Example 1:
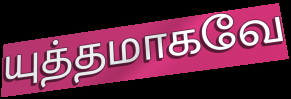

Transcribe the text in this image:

யுத்தமாகவே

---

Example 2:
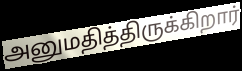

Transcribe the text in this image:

அனுமதித்திருக்கிறார்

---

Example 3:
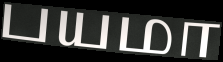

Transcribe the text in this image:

பயமா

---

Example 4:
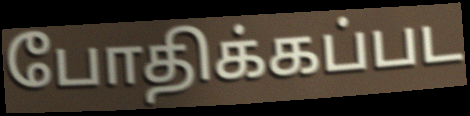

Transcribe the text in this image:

போதிக்கப்பட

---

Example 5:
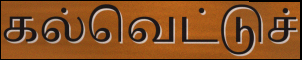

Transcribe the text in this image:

கல்வெட்டுச்